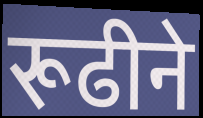
रूढीने